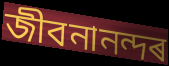
জীবনানন্দৰ